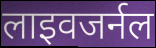
लाइवजर्नल